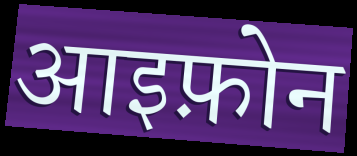
आइफ़ोन